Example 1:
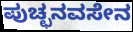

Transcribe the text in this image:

ಪುಚ್ಛನವಸೇನ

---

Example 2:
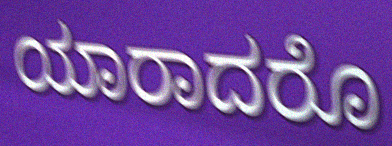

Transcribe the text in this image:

ಯಾರಾದರೊ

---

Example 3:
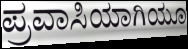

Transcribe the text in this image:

ಪ್ರವಾಸಿಯಾಗಿಯೂ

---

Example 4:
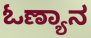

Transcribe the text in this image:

ಓಣ್ಯಾನ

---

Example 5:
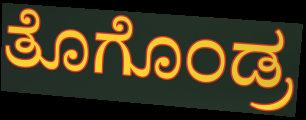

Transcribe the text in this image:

ತೊಗೊಂಡ್ರ